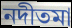
নদীতমা